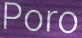
Poro